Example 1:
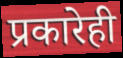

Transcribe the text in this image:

प्रकारेही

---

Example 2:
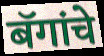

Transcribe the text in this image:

बॅगांचे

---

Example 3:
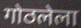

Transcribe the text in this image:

गोठलेला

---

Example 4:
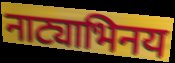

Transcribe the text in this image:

नाट्याभिनय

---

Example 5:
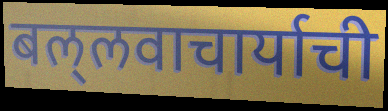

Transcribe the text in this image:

बल्लवाचार्याची